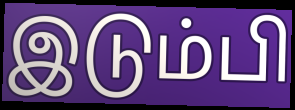
இடும்பி